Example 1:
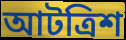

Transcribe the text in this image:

আটত্রিশ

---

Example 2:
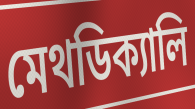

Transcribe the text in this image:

মেথডিক্যালি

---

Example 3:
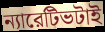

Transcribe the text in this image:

ন্যারেটিভটাই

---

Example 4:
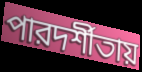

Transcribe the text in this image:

পারদর্শীতায়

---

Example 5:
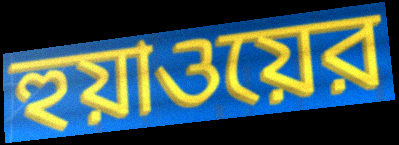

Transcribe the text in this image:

হুয়াওয়ের